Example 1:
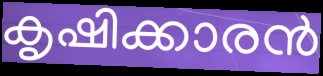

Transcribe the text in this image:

കൃഷിക്കാരൻ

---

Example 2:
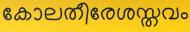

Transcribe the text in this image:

കോലതീരേശസ്തവം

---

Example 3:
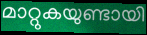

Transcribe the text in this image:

മാറ്റുകയുണ്ടായി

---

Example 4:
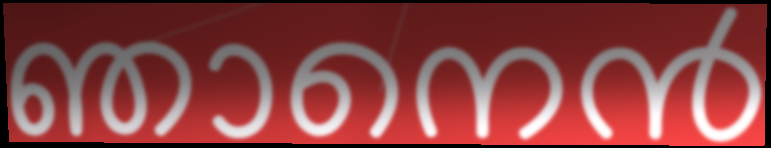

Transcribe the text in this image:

ഞാനെൻ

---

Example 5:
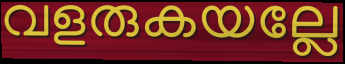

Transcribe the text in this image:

വളരുകയല്ലേ